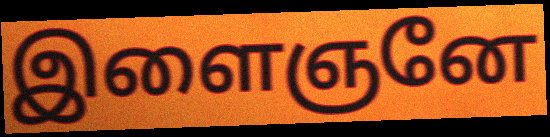
இளைஞனே